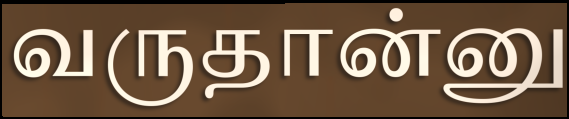
வருதான்னு